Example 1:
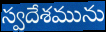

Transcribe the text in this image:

స్వదేశమును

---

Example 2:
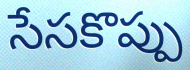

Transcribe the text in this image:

సేసకొప్పు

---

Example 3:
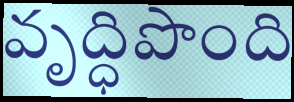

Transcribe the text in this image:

వృద్ధిపొంది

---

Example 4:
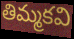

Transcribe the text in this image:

తిమ్మకవి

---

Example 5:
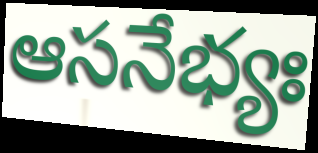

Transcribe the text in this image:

ఆసనేభ్యః